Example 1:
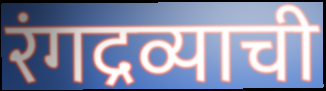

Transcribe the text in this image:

रंगद्रव्याची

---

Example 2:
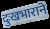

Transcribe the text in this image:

दुःखभाराने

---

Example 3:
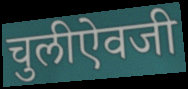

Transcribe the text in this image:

चुलीऐवजी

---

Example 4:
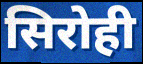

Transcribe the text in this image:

सिरोही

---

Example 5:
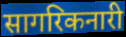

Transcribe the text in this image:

सागरिकनारी